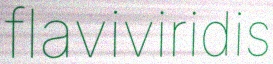
flaviviridis